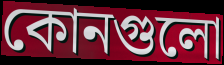
কোনগুলো